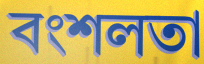
বংশলতা